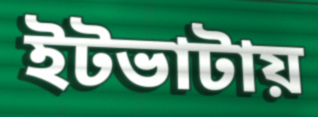
ইটভাটায়